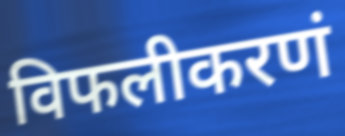
विफलीकरणं